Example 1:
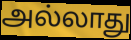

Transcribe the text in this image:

அல்லாது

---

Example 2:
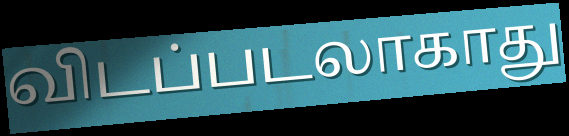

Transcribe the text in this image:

விடப்படலாகாது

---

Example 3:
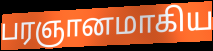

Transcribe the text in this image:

பரஞானமாகிய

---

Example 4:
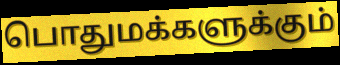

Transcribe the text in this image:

பொதுமக்களுக்கும்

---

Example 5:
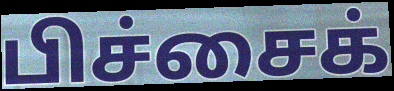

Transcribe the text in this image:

பிச்சைக்